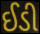
ઈડી